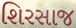
શિરસાજ